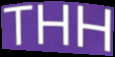
THH